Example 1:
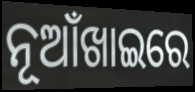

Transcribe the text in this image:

ନୂଆଁଖାଇରେ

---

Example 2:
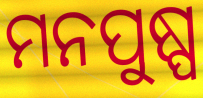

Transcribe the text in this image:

ମନପୁଷ୍ପ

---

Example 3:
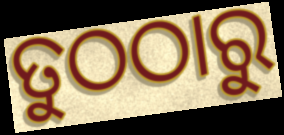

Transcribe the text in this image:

ତୁଠଠାରୁ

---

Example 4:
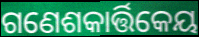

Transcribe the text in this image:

ଗଣେଶକାର୍ତ୍ତିକେୟ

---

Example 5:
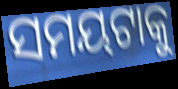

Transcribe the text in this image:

ସମୟଟାକୁ